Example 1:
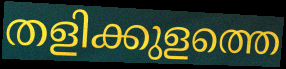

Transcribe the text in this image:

തളിക്കുളത്തെ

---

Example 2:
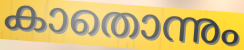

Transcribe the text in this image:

കാതൊന്നും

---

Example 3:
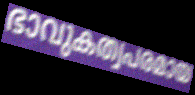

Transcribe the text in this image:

ഭാവുകത്വപരമായ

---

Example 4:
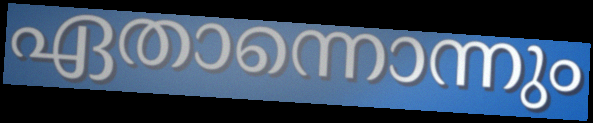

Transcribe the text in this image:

ഏതാന്നൊന്നും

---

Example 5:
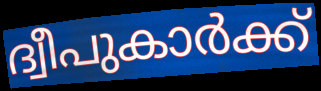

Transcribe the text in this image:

ദ്വീപുകാർക്ക്